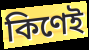
কিণেই